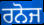
ਰਨੋਜ